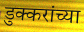
डुक्करांच्या